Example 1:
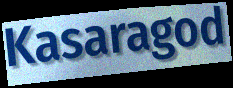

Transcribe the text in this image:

Kasaragod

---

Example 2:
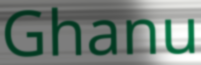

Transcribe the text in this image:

Ghanu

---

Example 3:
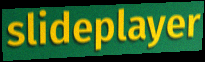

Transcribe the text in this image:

slideplayer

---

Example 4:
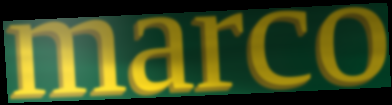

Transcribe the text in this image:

marco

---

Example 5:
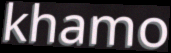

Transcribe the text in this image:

khamo